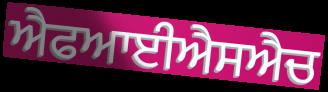
ਐਫਆਈਐਸਐਚ